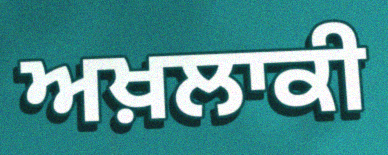
ਅਖ਼ਲਾਕੀ